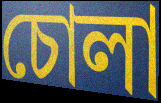
চোলা